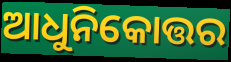
ଆଧୁନିକୋତ୍ତର